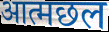
आत्मछल